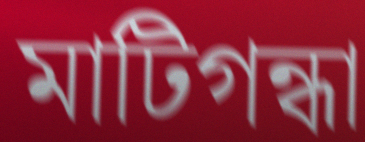
মাটিগন্ধা